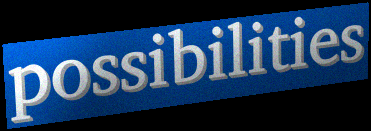
possibilities